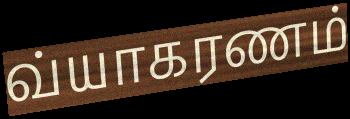
வ்யாகரணம்